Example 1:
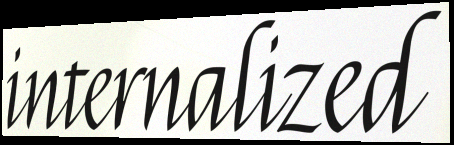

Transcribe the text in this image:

internalized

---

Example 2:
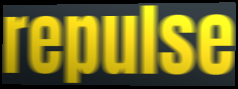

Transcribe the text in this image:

repulse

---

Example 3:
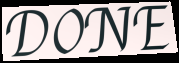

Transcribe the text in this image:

DONE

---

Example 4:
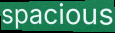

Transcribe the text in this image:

spacious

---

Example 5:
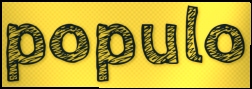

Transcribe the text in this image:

populo